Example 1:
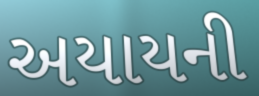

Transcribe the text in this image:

અયાયની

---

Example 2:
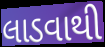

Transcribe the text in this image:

લાડવાથી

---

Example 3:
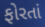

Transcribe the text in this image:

ફોરતાં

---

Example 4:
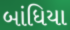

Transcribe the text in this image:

બાંધિયા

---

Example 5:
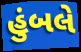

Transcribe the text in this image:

હુંબલે